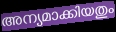
അന്യമാക്കിയതും